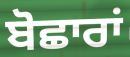
ਬੋਛਾਰਾਂ